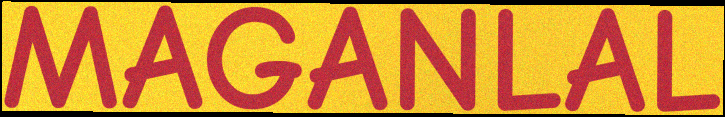
MAGANLAL